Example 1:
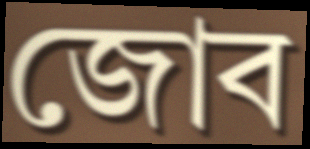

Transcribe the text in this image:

জোব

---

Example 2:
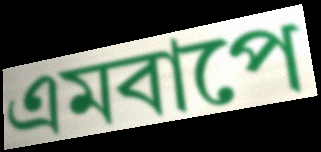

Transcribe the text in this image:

এমবাপে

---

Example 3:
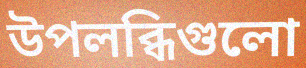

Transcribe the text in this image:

উপলব্ধিগুলো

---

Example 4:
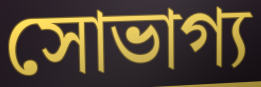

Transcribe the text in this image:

সোভাগ্য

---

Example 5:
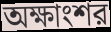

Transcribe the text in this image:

অক্ষাংশর